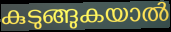
കുടുങ്ങുകയാൽ